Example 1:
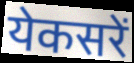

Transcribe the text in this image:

येकसरें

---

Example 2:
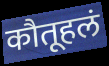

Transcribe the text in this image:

कौतूहलं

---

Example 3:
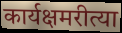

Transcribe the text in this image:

कार्यक्षमरीत्या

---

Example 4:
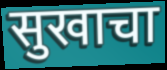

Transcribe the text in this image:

सुखाचा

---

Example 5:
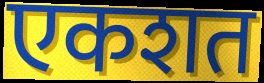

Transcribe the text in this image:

एकशत